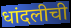
धांदलीची